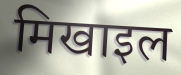
मिखाइल